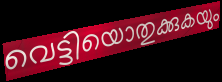
വെട്ടിയൊതുക്കുകയും